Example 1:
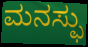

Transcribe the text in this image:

ಮನಸ್ಫು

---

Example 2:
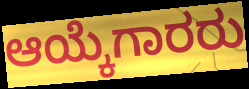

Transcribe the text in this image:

ಆಯ್ಕೆಗಾರರು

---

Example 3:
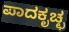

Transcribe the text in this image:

ಪಾದಕೃಚ್ಛ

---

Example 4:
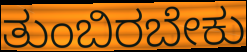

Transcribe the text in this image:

ತುಂಬಿರಬೇಕು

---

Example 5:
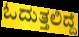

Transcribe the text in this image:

ಓದುತ್ತಲಿದ್ದೆ